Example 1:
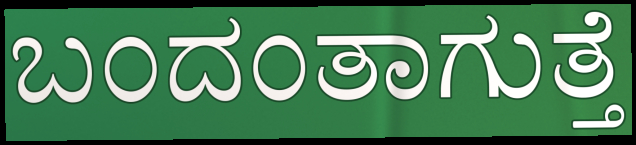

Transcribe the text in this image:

ಬಂದಂತಾಗುತ್ತೆ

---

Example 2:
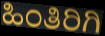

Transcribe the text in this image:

ಹಿಂತಿರಿಗಿ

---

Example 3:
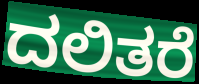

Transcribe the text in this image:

ದಲಿತರೆ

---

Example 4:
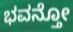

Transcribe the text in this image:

ಭವನ್ತೋ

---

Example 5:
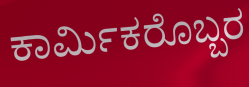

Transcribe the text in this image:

ಕಾರ್ಮಿಕರೊಬ್ಬರ